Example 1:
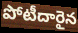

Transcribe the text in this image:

పోటీదారైన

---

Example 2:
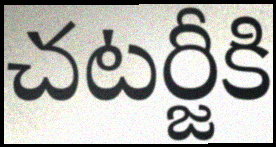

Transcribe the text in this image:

చటర్జీకి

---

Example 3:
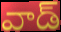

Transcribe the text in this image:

వాడ్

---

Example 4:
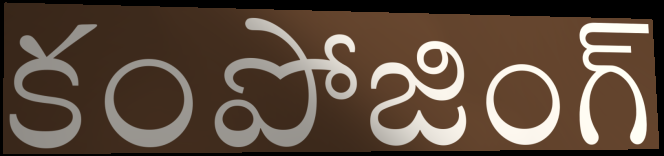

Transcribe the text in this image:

కంపోజింగ్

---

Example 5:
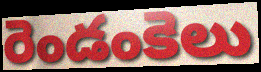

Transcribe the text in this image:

రెండంకెలు